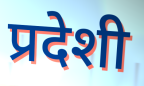
प्रदेशी